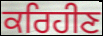
ਕਰਿਹੀਣ